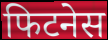
फिटनेस